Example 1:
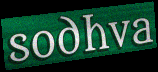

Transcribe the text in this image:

sodhva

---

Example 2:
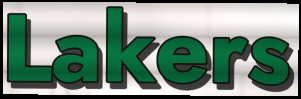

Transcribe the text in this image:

Lakers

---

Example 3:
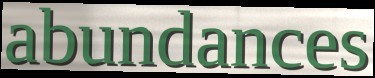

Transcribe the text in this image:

abundances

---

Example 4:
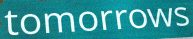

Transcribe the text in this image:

tomorrows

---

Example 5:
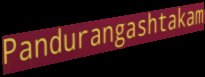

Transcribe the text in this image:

Pandurangashtakam